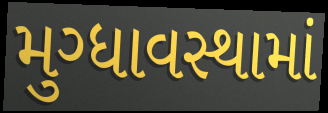
મુગ્ધાવસ્થામાં